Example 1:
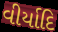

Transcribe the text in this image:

વીર્યાદિ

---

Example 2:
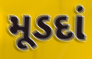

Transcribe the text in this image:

મૂડદાં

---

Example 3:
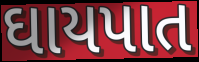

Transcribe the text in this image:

ઘાયપાત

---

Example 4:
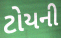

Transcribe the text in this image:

ટોયની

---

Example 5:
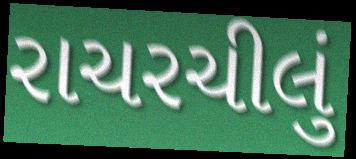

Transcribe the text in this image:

રાચરચીલું